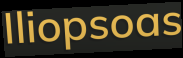
Iliopsoas